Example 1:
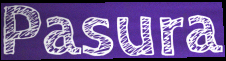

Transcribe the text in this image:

Pasura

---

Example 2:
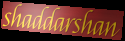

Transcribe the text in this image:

shaddarshan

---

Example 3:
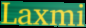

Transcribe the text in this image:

Laxmi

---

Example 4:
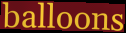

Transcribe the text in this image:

balloons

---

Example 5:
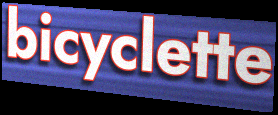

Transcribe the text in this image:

bicyclette